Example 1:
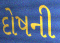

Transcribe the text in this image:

દોષની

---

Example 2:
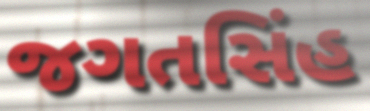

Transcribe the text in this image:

જગતસિંહ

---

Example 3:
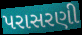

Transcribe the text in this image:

પરાસરણી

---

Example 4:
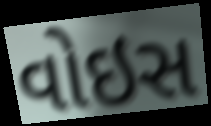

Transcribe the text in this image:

વોઇસ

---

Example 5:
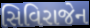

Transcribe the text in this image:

સિવિરાજેન